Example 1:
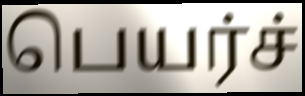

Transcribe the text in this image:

பெயர்ச்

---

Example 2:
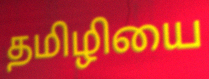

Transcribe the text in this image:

தமிழியை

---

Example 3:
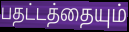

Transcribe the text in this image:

பதட்டத்தையும்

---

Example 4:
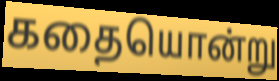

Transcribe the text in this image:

கதையொன்று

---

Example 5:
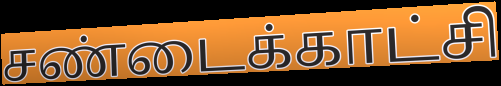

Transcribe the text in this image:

சண்டைக்காட்சி